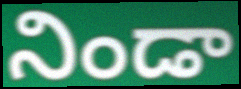
నిండా